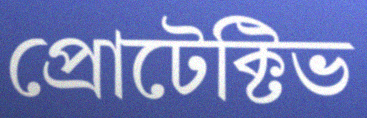
প্রোটেক্টিভ